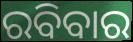
ରବିବାର